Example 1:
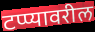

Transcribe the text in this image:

टप्प्यावरील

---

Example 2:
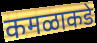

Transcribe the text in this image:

कमळाकडे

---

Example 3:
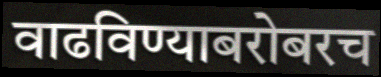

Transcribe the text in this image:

वाढविण्याबरोबरच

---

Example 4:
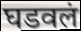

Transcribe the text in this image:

घडवलं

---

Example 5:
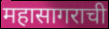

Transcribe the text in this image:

महासागराची